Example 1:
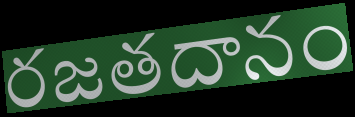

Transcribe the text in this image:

రజతదానం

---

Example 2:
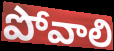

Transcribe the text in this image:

పోవాలి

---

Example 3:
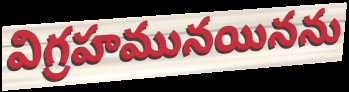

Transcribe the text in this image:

విగ్రహమునయినను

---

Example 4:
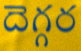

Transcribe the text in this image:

దెగ్గర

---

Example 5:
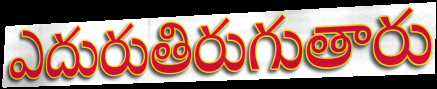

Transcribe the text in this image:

ఎదురుతిరుగుతారు